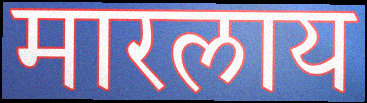
मारलाय